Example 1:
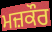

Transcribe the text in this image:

ਮਜ਼ਕੌਰ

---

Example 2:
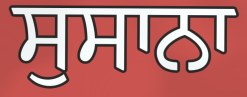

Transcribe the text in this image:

ਸੁਸਾਨਾ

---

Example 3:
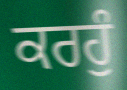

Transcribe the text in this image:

ਕਰਹੁੰ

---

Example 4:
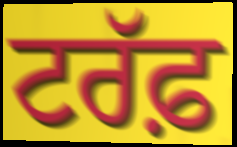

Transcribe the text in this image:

ਟਰੱਫ਼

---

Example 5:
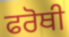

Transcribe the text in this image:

ਫਰੋਥੀ